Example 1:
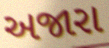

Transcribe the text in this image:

અજારા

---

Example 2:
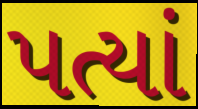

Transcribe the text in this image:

પત્યાં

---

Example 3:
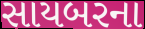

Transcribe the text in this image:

સાયબરના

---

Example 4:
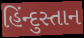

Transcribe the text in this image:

હિંન્દુસ્તાન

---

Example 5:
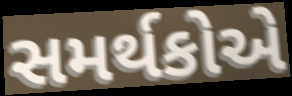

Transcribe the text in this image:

સમર્થકોએ